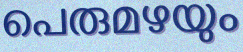
പെരുമഴയും